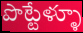
పొట్టేళ్ళూ